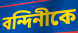
বন্দিনীকে